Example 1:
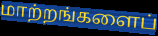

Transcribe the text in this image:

மாற்றங்களைப்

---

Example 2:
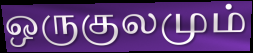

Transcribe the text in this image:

ஒருகுலமும்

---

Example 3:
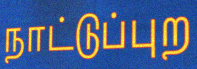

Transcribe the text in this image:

நாட்டுப்புற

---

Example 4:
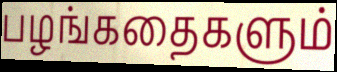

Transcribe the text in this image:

பழங்கதைகளும்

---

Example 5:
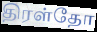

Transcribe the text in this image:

திரள்தோ